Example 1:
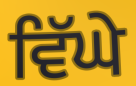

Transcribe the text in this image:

ਵਿੱਘੇ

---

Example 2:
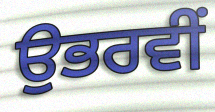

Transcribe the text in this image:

ਉਭਰਵੀਂ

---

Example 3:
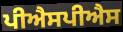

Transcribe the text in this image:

ਪੀਐਸਪੀਐਸ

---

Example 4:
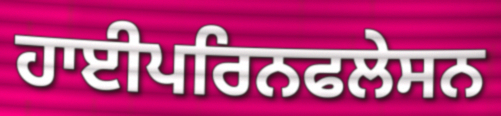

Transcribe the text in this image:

ਹਾਈਪਰਿਨਫਲੇਸਨ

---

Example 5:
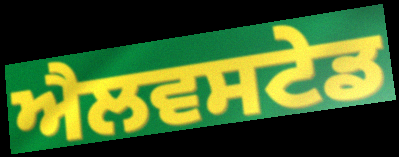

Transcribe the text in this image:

ਐਲਵਸਟੇਡ